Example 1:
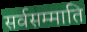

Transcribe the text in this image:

सर्वसम्माति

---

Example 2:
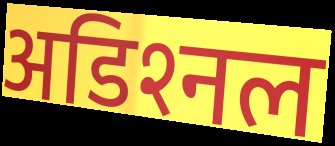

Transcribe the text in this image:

अडिश्नल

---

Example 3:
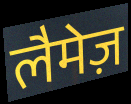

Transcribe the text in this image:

लैमेज़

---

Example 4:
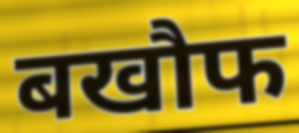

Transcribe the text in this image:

बखौफ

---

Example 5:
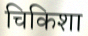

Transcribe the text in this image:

चिकिशा